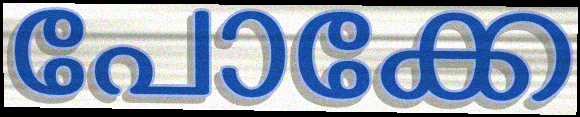
പോക്കേ